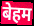
बेहम